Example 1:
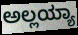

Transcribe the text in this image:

ಅಲ್ಲಯ್ಯಾ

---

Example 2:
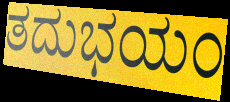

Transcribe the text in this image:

ತದುಭಯಂ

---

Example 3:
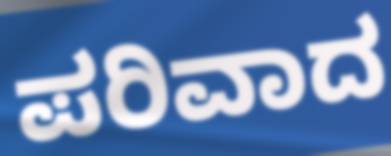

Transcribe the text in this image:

ಪರಿವಾದ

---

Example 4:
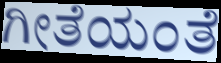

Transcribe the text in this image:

ಗೀತೆಯಂತೆ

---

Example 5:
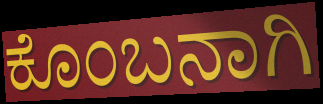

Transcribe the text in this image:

ಕೊಂಬನಾಗಿ